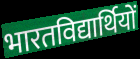
भारतविद्यार्थियों